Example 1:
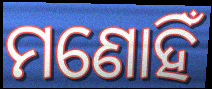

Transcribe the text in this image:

ମଣୋହିଁ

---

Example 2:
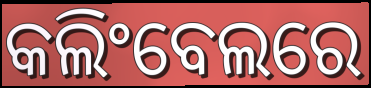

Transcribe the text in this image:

କଲିଂବେଲରେ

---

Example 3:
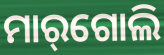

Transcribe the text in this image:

ମାର୍‌ଗୋଲି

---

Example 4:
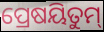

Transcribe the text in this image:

ପ୍ରେଷୟିତୁମ୍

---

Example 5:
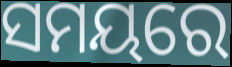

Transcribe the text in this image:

ସମୟରେ